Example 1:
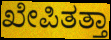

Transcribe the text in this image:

ಖೇಪಿತತ್ತಾ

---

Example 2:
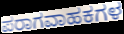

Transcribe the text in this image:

ಪರಾಗವಾಹಕಗಳ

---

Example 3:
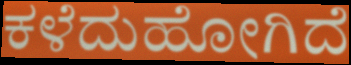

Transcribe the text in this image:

ಕಳೆದುಹೋಗಿದೆ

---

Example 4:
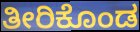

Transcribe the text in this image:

ತೀರಿಕೊಂಡ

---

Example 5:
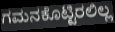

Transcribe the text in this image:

ಗಮನಕೊಟ್ಟಿರಲಿಲ್ಲ